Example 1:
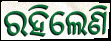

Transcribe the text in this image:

ରହିଲେଣି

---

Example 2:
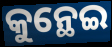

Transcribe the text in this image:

କୁନ୍ଥେଇ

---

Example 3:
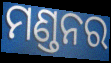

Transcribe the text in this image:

ମଣ୍ଡନର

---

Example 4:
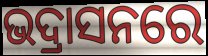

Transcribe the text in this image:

ଭଦ୍ରାସନରେ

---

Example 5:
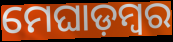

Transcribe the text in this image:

ମେଘାଡ଼ମ୍ବର